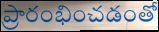
ప్రారంభించడంతో